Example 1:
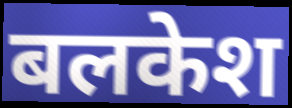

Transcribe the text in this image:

बलकेश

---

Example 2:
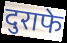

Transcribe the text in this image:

दुराफे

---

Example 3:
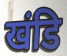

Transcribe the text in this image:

खंडि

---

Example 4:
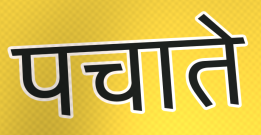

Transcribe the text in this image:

पचाते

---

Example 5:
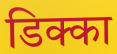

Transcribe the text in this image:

डिक्का